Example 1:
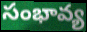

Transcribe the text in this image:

సంభావ్య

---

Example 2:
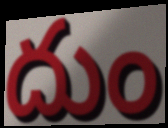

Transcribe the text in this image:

దుం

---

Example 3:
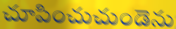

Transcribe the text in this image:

చూపించుచుండెను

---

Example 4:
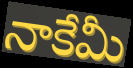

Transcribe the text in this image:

నాకేమీ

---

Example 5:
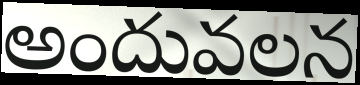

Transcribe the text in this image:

అందువలన